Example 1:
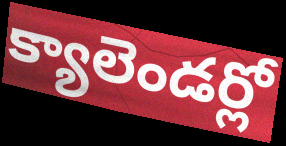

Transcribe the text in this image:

క్యాలెండర్లో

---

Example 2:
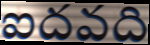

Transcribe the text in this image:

ఐదవది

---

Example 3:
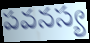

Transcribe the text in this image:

పవనస్య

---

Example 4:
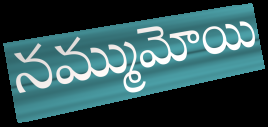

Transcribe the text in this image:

నమ్ముమోయి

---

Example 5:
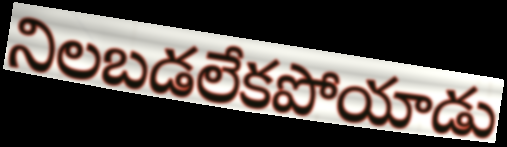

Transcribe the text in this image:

నిలబడలేకపోయాడు